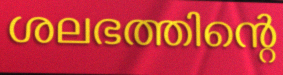
ശലഭത്തിന്റെ